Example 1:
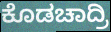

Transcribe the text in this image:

ಕೊಡಚಾದ್ರಿ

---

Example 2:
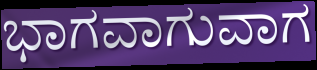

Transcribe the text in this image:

ಭಾಗವಾಗುವಾಗ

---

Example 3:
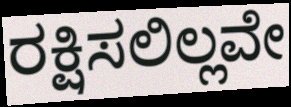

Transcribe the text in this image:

ರಕ್ಷಿಸಲಿಲ್ಲವೇ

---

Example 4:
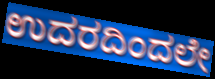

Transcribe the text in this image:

ಉದರದಿಂದಲೇ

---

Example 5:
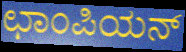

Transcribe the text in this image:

ಛಾಂಪಿಯನ್